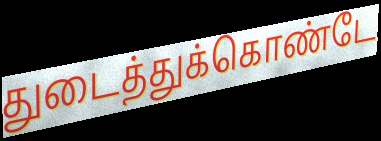
துடைத்துக்கொண்டே